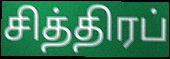
சித்திரப்